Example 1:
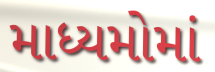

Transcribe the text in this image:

માધ્યમોમાં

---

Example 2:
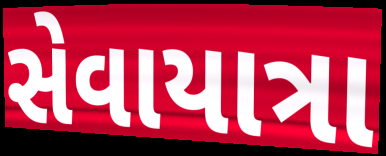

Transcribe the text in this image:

સેવાયાત્રા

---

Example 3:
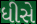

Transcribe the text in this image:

ધીસે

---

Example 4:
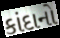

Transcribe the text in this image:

કાંદાનો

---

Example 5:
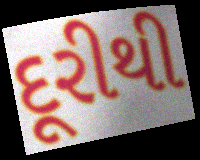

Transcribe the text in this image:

દૂરીથી